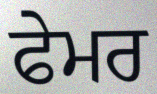
ਫੇਮਰ